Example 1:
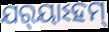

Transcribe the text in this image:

ଯର୍‌ୟାଽହମ୍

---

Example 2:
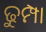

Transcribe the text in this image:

ଢୁମ୍ପା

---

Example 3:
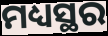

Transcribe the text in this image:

ମଧ୍ୟସ୍ଥର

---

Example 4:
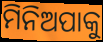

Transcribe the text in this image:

ମିନିଅପାକୁ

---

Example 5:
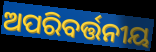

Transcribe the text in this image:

ଅପରିବର୍ତ୍ତନୀୟ